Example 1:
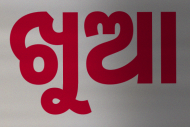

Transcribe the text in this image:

ଖୁଆ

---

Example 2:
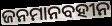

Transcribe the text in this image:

ଜନମାନବହୀନ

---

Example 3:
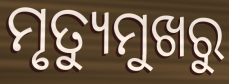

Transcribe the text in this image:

ମୃତ୍ୟୁମୁଖରୁ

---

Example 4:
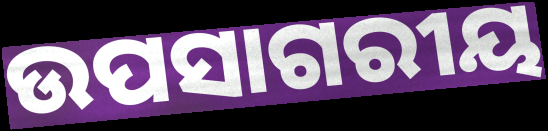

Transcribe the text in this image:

ଉପସାଗରୀୟ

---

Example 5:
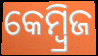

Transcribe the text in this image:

କେମ୍ବ୍ରିଜ